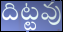
దిట్టవు